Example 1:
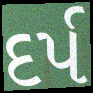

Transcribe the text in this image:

દર્પ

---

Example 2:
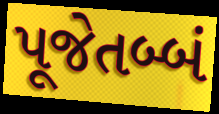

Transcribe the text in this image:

પૂજેતબ્બં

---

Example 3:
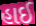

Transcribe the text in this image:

હાઈ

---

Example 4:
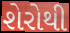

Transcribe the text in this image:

શેરોથી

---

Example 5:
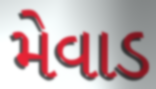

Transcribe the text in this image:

મેવાડ